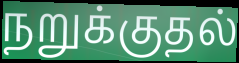
நறுக்குதல்